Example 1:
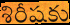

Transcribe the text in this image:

శిరీషకు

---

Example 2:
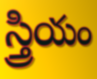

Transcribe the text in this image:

స్త్రియం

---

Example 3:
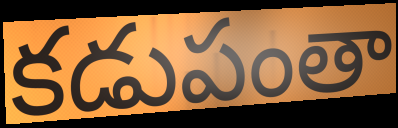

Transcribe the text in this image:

కడుపంతా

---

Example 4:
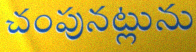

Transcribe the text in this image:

చంపునట్లును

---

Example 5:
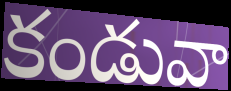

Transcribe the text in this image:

కండువా